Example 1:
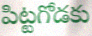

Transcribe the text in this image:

పిట్టగోడకు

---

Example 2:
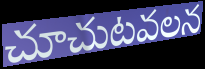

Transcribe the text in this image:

చూచుటవలన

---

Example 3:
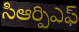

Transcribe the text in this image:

సిఆర్పిఎఫ్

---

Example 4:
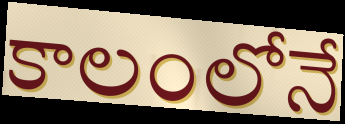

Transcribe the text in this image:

కాలంలోనే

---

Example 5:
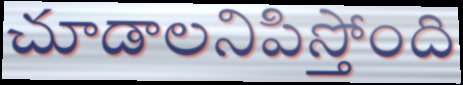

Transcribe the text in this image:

చూడాలనిపిస్తోంది